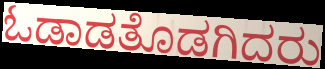
ಓಡಾಡತೊಡಗಿದರು